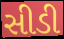
સીડી